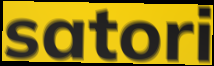
satori